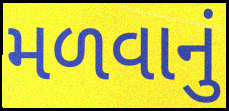
મળવાનું